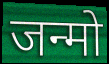
जन्मो